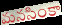
మనసింకా